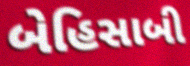
બેહિસાબી